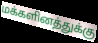
மக்களினத்துக்கு